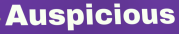
Auspicious